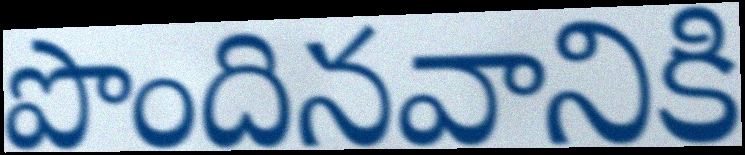
పొందినవానికి